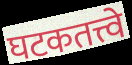
घटकतत्त्वे